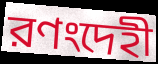
রণংদেহী